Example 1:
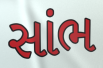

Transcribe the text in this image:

સાંભ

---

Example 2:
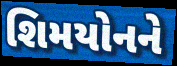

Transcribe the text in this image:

શિમયોનને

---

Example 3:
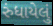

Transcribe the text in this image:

રુંધાયેલું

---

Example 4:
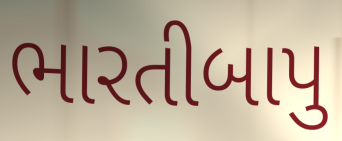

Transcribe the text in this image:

ભારતીબાપુ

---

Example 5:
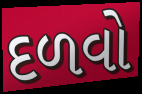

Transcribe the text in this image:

દળવો